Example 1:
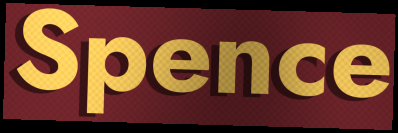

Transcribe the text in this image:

Spence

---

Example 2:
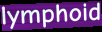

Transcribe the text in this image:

lymphoid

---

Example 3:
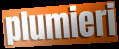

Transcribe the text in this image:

plumieri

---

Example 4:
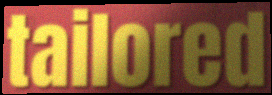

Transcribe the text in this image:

tailored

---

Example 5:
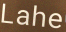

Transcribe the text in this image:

Lahe